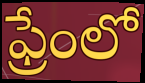
ఫ్రేంలో